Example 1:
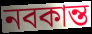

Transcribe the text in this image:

নবকান্ত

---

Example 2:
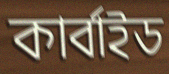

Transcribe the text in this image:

কার্বাইড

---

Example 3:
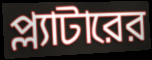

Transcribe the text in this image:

প্ল্যাটারের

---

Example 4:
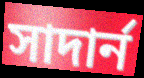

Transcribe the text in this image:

সাদার্ন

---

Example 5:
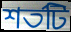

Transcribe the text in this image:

শর্তটি